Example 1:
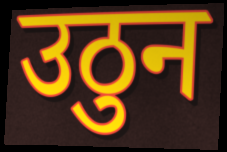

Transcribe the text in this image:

उठुन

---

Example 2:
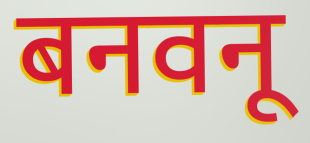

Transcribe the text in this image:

बनवनू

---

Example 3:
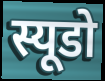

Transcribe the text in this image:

स्यूडो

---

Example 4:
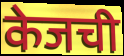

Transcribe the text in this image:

केजची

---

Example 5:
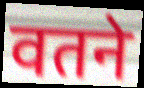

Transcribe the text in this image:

वतने